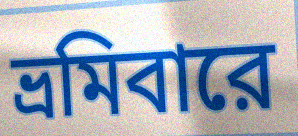
ভ্রমিবারে